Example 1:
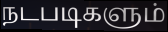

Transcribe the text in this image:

நடபடிகளும்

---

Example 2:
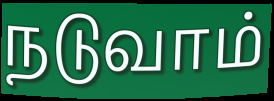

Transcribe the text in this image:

நடுவாம்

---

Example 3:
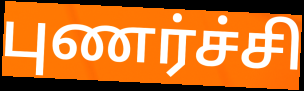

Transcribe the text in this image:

புணர்ச்சி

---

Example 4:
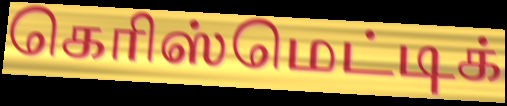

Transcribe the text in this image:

கெரிஸ்மெட்டிக்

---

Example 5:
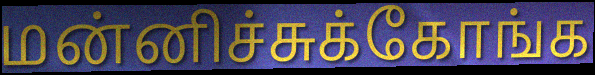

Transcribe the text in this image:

மன்னிச்சுக்கோங்க